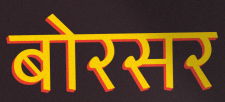
बोरसर